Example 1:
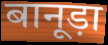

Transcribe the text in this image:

बानूड़ा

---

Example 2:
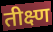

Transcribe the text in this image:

तीक्ष्ण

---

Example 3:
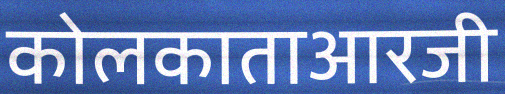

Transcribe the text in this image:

कोलकाताआरजी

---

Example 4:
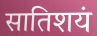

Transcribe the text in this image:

सातिशयं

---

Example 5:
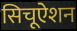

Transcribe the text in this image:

सिचूऐशन